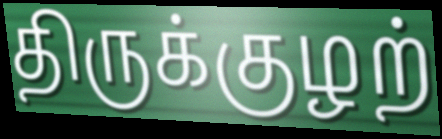
திருக்குழற்